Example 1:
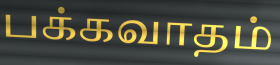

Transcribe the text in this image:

பக்கவாதம்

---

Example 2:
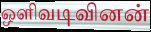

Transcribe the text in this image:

ஒளிவடிவினன்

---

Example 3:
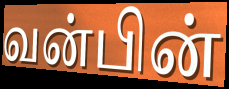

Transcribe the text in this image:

வன்பின்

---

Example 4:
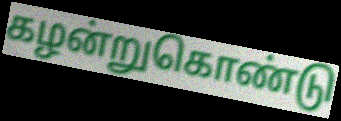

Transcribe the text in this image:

கழன்றுகொண்டு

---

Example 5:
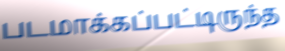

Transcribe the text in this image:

படமாக்கப்பட்டிருந்த